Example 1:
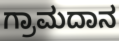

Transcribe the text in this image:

ಗ್ರಾಮದಾನ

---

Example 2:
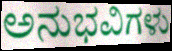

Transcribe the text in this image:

ಅನುಭವಿಗಳು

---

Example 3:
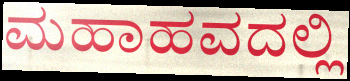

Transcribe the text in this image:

ಮಹಾಹವದಲ್ಲಿ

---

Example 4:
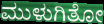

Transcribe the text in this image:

ಮುಳುಗಿತೋ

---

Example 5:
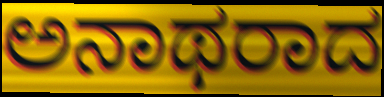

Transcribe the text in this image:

ಅನಾಥರಾದ